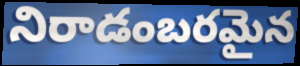
నిరాడంబరమైన